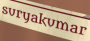
suryakumar